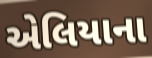
એલિયાના